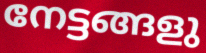
നേട്ടങ്ങളു